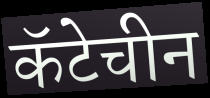
कॅटेचीन